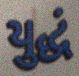
યુદ્ધં